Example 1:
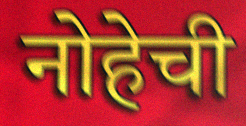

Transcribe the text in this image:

नोहेची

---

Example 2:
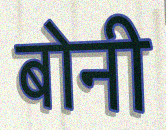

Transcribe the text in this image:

बोनी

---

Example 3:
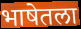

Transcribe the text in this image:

भाषेतला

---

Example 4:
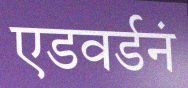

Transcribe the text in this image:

एडवर्डनं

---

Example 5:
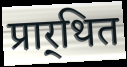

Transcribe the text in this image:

प्रार्थित